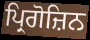
ਪ੍ਰਿਗੋਜ਼ਿਨ